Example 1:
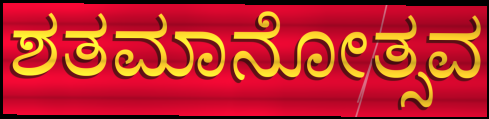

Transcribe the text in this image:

ಶತಮಾನೋತ್ಸವ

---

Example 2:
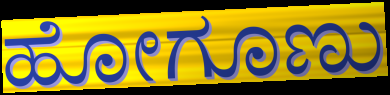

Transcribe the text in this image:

ಹೋಗೂಣು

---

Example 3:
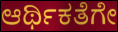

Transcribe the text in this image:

ಆರ್ಥಿಕತೆಗೇ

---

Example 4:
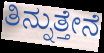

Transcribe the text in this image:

ತಿನ್ನುತ್ತೇನೆ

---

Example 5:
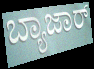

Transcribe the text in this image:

ಬ್ಯಾಜಾರ್